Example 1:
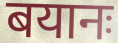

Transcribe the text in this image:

बयानः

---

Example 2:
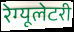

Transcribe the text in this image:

रेग्यूलेटरी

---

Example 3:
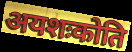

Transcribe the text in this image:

अयशःकोति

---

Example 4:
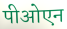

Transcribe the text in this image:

पीओएन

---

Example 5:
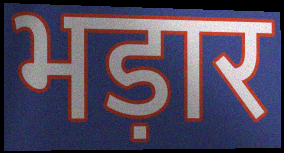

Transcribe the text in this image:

भड़ार